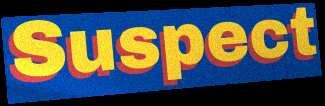
Suspect